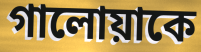
গালোয়াকে